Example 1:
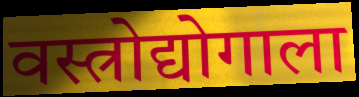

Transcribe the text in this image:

वस्त्रोद्योगाला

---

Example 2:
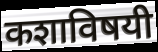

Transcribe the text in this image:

कशाविषयी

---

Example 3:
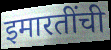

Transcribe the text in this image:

इमारतींची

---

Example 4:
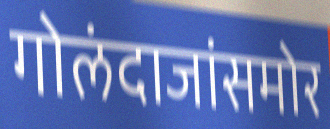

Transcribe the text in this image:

गोलंदाजांसमोर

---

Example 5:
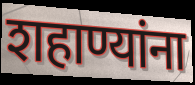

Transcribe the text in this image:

शहाण्यांना